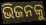
ଭିଜନକୁ